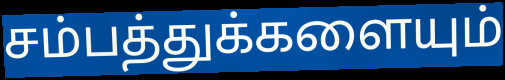
சம்பத்துக்களையும்